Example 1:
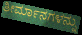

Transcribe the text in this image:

ತೀರ್ಮಾನಗಳನ್ನು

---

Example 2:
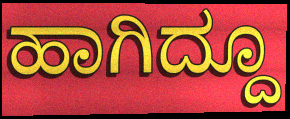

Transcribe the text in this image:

ಹಾಗಿದ್ದೂ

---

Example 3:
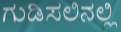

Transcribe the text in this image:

ಗುಡಿಸಲಿನಲ್ಲಿ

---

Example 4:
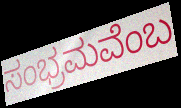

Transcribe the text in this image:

ಸಂಭ್ರಮವೆಂಬ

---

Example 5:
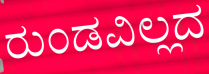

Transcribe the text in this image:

ರುಂಡವಿಲ್ಲದ